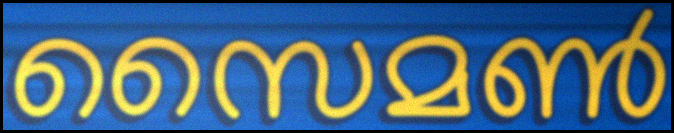
സൈമൺ